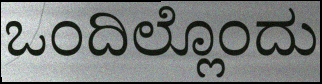
ಒಂದಿಲ್ಲೊಂದು